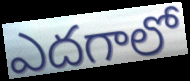
ఎదగాలో